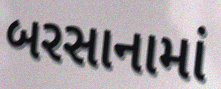
બરસાનામાં